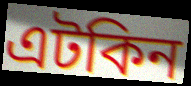
এটকিন